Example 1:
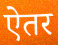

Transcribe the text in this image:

ऐतर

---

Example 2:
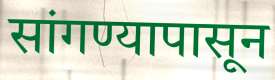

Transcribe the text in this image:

सांगण्यापासून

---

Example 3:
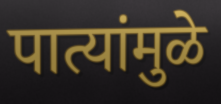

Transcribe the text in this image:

पात्यांमुळे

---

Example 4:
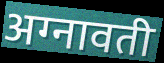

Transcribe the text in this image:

अग्नावती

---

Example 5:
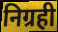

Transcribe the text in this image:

निग्रही